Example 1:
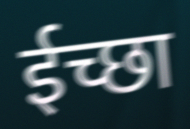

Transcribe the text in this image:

ईच्छा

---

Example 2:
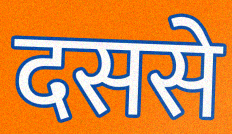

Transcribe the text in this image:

दससे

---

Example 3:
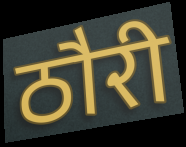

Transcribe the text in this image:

ठौरी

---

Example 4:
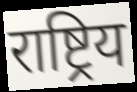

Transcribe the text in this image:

राष्ट्रिय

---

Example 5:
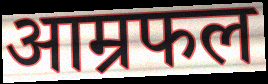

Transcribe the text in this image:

आम्रफल